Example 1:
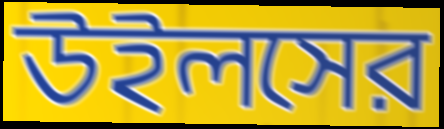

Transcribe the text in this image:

উইলসের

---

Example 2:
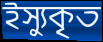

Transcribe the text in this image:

ইস্যুকৃত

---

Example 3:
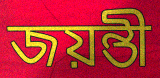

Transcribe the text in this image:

জয়ন্তী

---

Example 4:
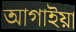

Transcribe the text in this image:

আগাইয়া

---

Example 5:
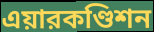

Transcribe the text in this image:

এয়ারকণ্ডিশন